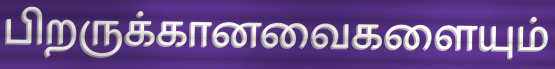
பிறருக்கானவைகளையும்